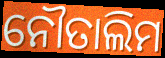
ନୌତାଲିମ